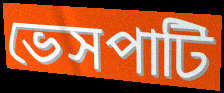
ভেসপাটি